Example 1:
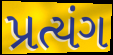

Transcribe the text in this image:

પ્રત્યંગ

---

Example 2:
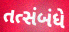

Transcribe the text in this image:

તત્સંબંધે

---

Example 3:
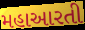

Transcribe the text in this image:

મહાઆરતી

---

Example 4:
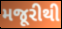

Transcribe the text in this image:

મજૂરીથી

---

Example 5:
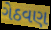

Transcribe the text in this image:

ગેઠવણ